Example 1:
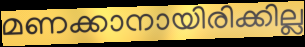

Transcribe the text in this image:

മണക്കാനായിരിക്കില്ല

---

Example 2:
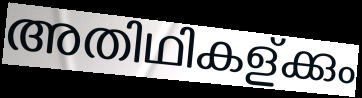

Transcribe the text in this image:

അതിഥികള്ക്കും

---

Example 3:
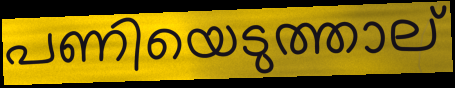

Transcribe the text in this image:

പണിയെടുത്താല്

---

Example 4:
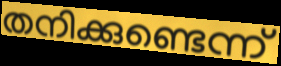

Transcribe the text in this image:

തനിക്കുണ്ടെന്ന്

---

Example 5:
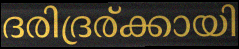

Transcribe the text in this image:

ദരിദ്രര്ക്കായി